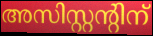
അസിസ്റ്റന്റിന്